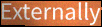
Externally